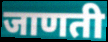
जाणती